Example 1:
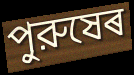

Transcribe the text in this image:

পুৰুষেৰ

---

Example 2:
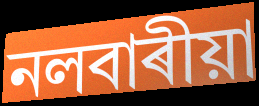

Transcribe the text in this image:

নলবাৰীয়া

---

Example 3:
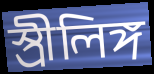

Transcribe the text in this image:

স্ত্ৰীলিঙ্গ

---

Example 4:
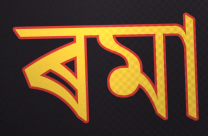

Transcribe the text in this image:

ৰমা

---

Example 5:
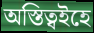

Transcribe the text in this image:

অস্তিত্বইহে